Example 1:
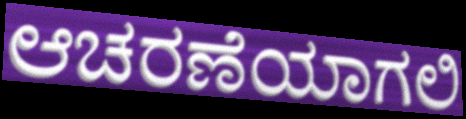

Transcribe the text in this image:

ಆಚರಣೆಯಾಗಲಿ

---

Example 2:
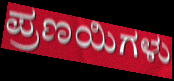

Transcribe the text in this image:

ಪ್ರಣಯಿಗಳು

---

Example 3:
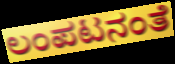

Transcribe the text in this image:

ಲಂಪಟನಂತೆ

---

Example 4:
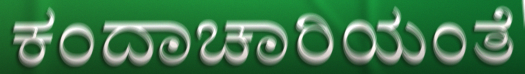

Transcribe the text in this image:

ಕಂದಾಚಾರಿಯಂತೆ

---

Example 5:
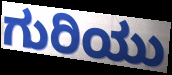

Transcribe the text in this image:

ಗುರಿಯು